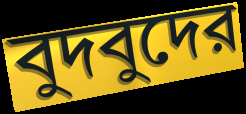
বুদবুদের